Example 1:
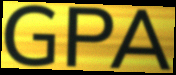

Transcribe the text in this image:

GPA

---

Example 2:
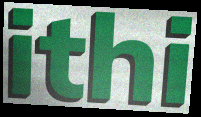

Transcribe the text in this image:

ithi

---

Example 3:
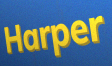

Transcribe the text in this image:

Harper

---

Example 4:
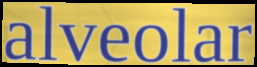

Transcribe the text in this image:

alveolar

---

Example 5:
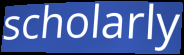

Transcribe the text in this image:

scholarly